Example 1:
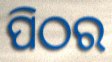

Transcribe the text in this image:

ପିଠର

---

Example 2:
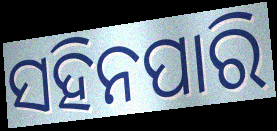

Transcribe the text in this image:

ସହିନପାରି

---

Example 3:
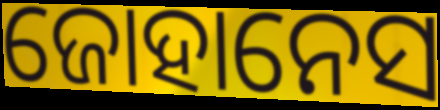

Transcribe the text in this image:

ଜୋହାନେସ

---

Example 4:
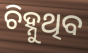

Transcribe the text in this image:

ଚିହ୍ନୁଥିବ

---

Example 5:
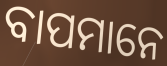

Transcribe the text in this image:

ବାପମାନେ